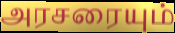
அரசரையும்